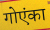
गोएंका